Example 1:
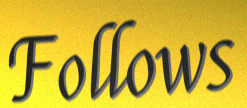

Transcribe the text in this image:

Follows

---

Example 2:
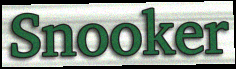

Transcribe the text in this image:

Snooker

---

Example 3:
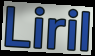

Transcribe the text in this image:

Liril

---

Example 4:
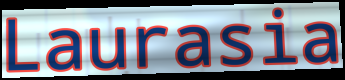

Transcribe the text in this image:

Laurasia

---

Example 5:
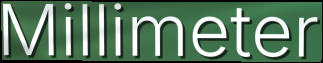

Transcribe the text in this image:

Millimeter